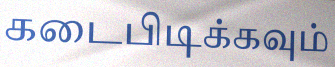
கடைபிடிக்கவும்